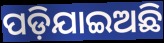
ପଡ଼ିଯାଇଅଛି